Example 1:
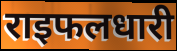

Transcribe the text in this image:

राइफलधारी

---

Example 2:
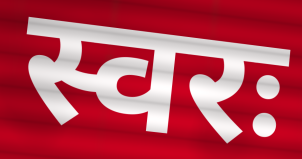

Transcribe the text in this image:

स्वरः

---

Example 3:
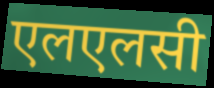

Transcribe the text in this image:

एलएलसी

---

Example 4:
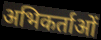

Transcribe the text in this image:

अभिकर्ताओं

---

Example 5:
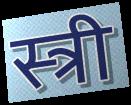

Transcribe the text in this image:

स्त्री